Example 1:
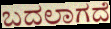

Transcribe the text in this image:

ಬದಲಾಗದೆ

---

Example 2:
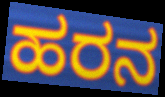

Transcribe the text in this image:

ಹರನ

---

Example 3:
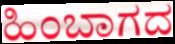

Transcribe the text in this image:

ಹಿಂಬಾಗದ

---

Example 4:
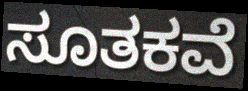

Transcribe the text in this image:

ಸೂತಕವೆ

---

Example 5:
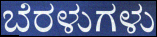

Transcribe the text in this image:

ಬೆರಳುಗಳು